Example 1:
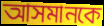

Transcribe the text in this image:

আসমানকে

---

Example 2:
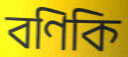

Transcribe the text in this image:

বণিকি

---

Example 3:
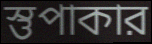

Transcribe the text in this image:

স্তুপাকার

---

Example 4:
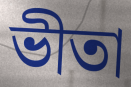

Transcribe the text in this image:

ভীতা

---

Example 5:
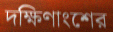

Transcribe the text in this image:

দক্ষিণাংশের